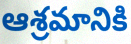
ఆశ్రమానికి